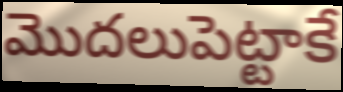
మొదలుపెట్టాకే